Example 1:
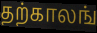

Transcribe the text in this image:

தற்காலங்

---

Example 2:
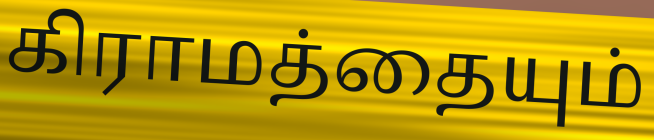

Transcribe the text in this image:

கிராமத்தையும்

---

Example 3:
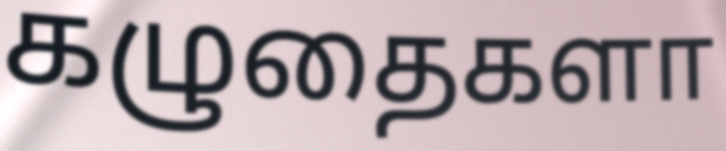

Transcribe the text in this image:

கழுதைகளா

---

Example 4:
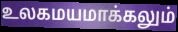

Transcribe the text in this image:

உலகமயமாக்கலும்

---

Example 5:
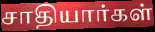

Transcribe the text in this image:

சாதியார்கள்